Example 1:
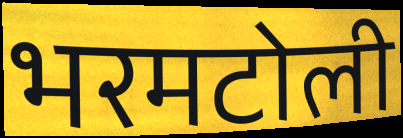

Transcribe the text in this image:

भरमटोली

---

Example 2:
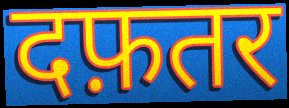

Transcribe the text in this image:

दफ़तर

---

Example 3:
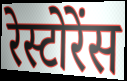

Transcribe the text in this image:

रेस्टोरेंस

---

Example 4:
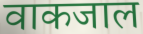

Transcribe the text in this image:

वाकजाल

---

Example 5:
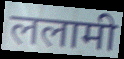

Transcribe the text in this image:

ललामी